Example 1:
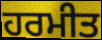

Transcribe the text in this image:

ਹਰਮੀਤ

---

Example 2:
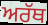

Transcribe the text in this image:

ਅਰੱਥ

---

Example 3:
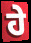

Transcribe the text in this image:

ਹੇ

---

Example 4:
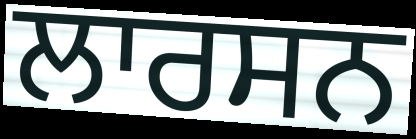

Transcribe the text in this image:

ਲਾਰਸਨ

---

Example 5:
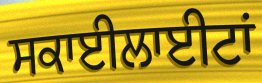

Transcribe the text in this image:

ਸਕਾਈਲਾਈਟਾਂ